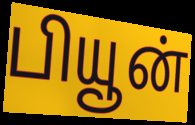
பியூன்